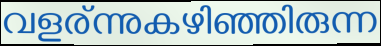
വളര്ന്നുകഴിഞ്ഞിരുന്ന